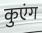
कुएंग